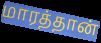
மாரத்தான்